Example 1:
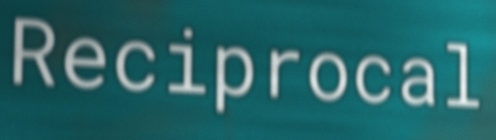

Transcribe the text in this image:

Reciprocal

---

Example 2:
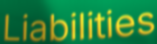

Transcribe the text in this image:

Liabilities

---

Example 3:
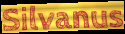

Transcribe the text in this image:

Silvanus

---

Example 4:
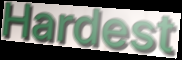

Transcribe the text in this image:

Hardest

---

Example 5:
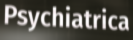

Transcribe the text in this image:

Psychiatrica